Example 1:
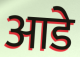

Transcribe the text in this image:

आडे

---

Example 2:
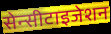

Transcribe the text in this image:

सेन्सीटाइजेशन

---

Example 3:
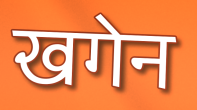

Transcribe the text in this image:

खगेन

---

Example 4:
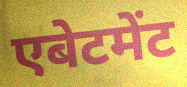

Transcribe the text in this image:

एबेटमेंट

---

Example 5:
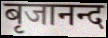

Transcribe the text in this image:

बृजानन्द